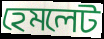
হেমলেট